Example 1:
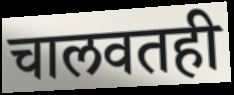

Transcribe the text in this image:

चालवतही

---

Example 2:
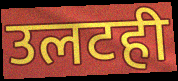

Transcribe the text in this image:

उलटही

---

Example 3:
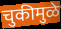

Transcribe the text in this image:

चुकीमुळे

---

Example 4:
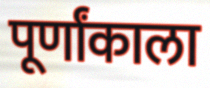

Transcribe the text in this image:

पूर्णांकाला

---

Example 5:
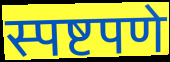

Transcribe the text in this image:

स्पष्टपणे